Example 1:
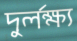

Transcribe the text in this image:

দুর্লক্ষ্য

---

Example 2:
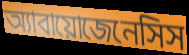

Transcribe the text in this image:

অ্যাবায়োজেনেসিস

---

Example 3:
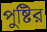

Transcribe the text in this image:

পুষ্টির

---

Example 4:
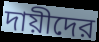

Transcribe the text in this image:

দায়ীদের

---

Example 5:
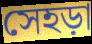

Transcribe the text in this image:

সেহড়া